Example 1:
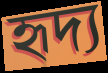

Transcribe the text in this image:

হৃদ্য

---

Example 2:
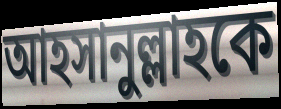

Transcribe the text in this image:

আহসানুল্লাহকে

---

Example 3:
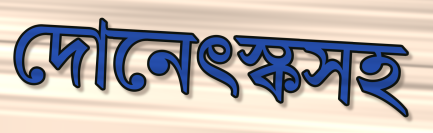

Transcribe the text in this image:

দোনেৎস্কসহ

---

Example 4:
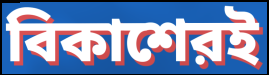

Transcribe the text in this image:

বিকাশেরই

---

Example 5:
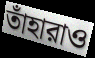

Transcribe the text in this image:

তাঁহারাও